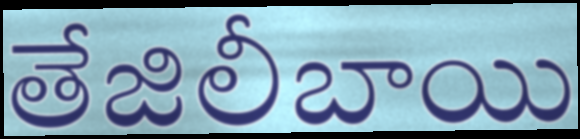
తేజిలీబాయి